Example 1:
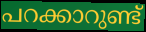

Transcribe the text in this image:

പറക്കാറുണ്ട്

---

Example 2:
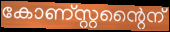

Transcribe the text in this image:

കോണ്സ്റ്റന്റൈന്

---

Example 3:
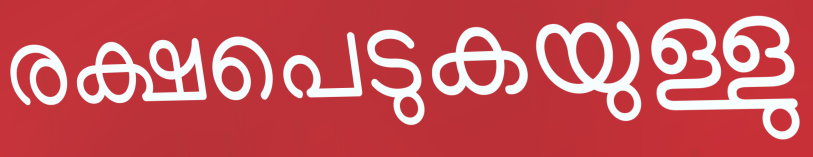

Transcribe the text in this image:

രക്ഷപെടുകയുള്ളു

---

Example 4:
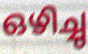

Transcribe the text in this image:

ഒഴിച്ചു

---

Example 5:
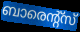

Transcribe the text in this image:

ബാരെന്റ്സ്